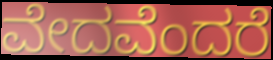
ವೇದವೆಂದರೆ